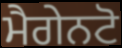
ਮੈਗੇਨਟੋ